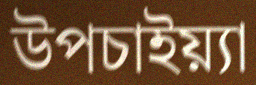
উপচাইয়্যা